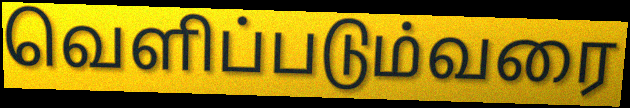
வெளிப்படும்வரை